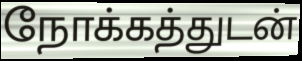
நோக்கத்துடன்